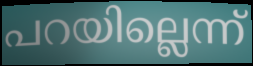
പറയില്ലെന്ന്